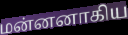
மன்னனாகிய